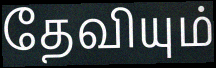
தேவியும்